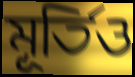
মূৰ্তিও